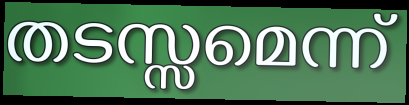
തടസ്സമെന്ന്